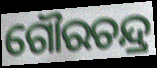
ଗୌରଚନ୍ଦ୍ର